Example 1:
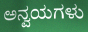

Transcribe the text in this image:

ಅನ್ವಯಗಳು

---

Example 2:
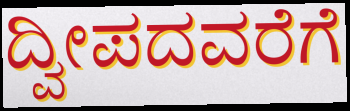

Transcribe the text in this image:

ದ್ವೀಪದವರೆಗೆ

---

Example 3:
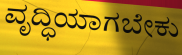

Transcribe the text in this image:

ವೃದ್ಧಿಯಾಗಬೇಕು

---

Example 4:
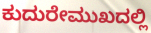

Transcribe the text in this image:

ಕುದುರೇಮುಖದಲ್ಲಿ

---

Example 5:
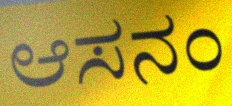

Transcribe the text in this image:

ಆಸನಂ